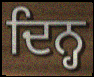
ਦਿਨ੍ਹ